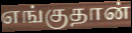
எங்குதான்